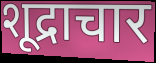
शूद्राचार